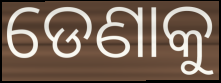
ଡେଣାକୁ